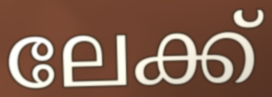
ലേക്ക്